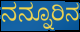
ನನ್ನೂರಿನ